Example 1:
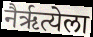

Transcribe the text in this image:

नैर्ऋत्येला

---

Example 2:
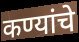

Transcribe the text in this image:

कण्यांचे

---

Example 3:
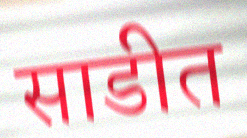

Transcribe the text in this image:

साडीत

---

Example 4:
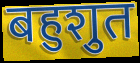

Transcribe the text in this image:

बहुश्रुत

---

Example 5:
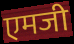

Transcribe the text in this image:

एमजी